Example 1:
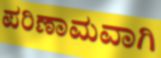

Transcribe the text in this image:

ಪರಿಣಾಮವಾಗಿ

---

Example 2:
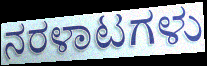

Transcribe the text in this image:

ನರಳಾಟಗಳು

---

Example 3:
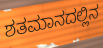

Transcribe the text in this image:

ಶತಮಾನದಲ್ಲಿನ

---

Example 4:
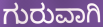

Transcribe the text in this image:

ಗುರುವಾಗಿ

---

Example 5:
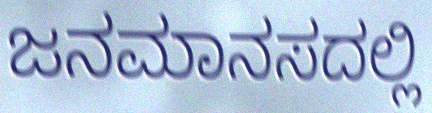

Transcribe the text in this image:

ಜನಮಾನಸದಲ್ಲಿ